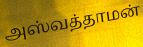
அஸ்வத்தாமன்